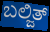
ಬಲ್ಜಿತ್